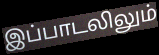
இப்பாடலிலும்